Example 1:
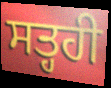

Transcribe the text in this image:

ਸਤ੍ਹਹੀ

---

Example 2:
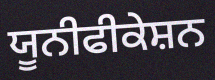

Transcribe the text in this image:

ਯੂਨੀਫੀਕੇਸ਼ਨ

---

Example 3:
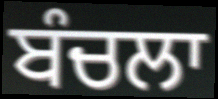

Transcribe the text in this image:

ਬੰਚਲਾ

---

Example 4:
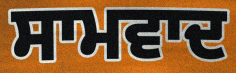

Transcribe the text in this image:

ਸਾਮਵਾਦ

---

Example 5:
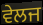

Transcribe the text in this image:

ਵੇਲਜ